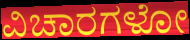
ವಿಚಾರಗಳೋ